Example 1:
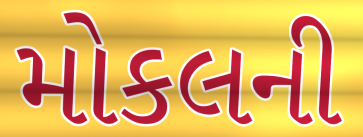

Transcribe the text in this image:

મોકલની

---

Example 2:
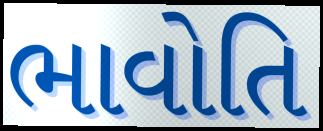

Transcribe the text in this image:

ભાવોતિ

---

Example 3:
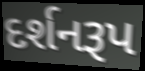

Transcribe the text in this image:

દર્શનરૂપ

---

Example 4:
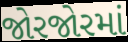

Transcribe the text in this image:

જોરજોરમાં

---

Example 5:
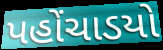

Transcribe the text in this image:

પહોંચાડયો